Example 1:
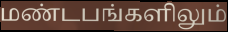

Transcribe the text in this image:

மண்டபங்களிலும்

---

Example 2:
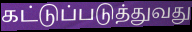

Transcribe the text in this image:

கட்டுப்படுத்துவது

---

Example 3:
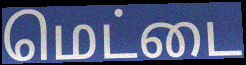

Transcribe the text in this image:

மெட்டை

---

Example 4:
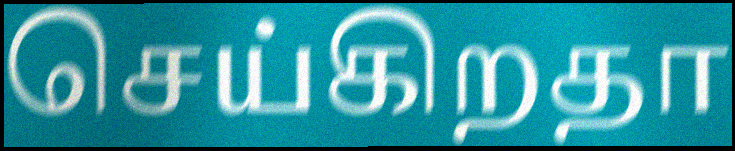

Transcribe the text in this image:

செய்கிறதா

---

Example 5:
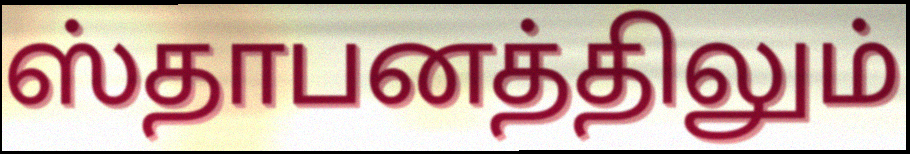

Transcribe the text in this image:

ஸ்தாபனத்திலும்